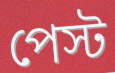
পেস্ট